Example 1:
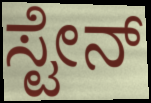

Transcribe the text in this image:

ಸ್ಟೇನ್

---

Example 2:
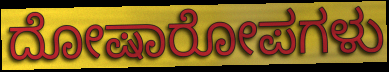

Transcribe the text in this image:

ದೋಷಾರೋಪಗಳು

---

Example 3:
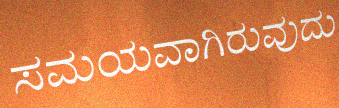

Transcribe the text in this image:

ಸಮಯವಾಗಿರುವುದು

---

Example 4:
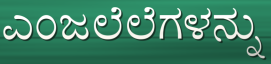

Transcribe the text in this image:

ಎಂಜಲೆಲೆಗಳನ್ನು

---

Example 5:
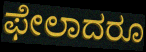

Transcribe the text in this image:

ಫೇಲಾದರೂ